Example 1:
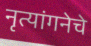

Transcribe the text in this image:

नृत्यांगनेचे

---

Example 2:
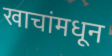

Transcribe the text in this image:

खाचांमधून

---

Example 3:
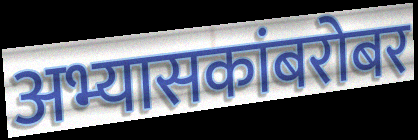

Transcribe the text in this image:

अभ्यासकांबरोबर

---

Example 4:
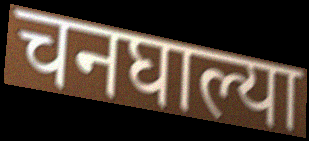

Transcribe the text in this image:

चनघाल्या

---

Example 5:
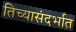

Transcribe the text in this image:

तिच्यासंदर्भात